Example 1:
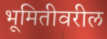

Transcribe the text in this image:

भूमितीवरील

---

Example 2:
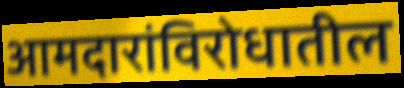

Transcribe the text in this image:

आमदारांविरोधातील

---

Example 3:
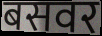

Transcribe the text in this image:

बसवर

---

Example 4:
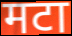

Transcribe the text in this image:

मटा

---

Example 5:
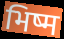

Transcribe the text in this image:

भिष्म